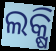
ଲକ୍ଷି